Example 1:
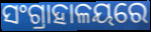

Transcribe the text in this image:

ସଂଗ୍ରାହାଳୟରେ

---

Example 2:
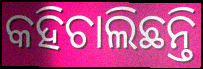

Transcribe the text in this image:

କହିଚାଲିଛନ୍ତି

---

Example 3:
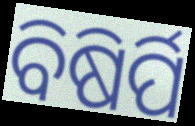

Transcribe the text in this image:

ବିଷିର୍ପି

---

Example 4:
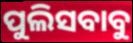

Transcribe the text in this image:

ପୁଲିସବାବୁ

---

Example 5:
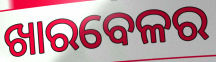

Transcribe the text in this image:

ଖାରବେଳର